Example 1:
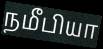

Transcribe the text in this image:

நமீபியா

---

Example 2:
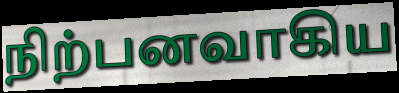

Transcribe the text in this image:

நிற்பனவாகிய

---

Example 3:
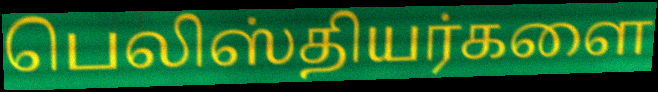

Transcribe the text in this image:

பெலிஸ்தியர்களை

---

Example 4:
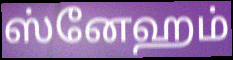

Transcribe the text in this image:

ஸ்னேஹம்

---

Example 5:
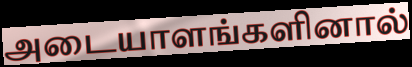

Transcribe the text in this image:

அடையாளங்களினால்